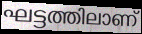
ഘട്ടത്തിലാണ്